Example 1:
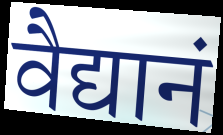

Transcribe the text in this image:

वैद्यानं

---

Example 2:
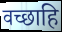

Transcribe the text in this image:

वच्छाहि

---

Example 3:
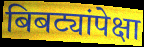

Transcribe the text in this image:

बिबट्यांपेक्षा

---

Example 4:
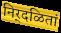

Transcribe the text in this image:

निर्दळितां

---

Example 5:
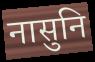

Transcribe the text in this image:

नासुनि